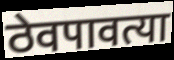
ठेवपावत्या